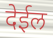
देईल